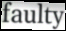
faulty